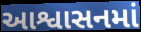
આશ્વાસનમાં